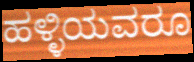
ಹಳ್ಳಿಯವರೂ